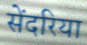
सेंदरिया